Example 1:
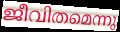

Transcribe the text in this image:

ജീവിതമെന്നു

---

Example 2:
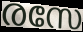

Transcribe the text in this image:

രസേ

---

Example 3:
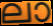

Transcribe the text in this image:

ലാ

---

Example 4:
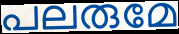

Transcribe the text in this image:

പലരുമേ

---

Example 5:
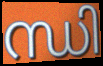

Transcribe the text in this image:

ന്ധി